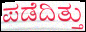
ಪಡೆದಿತ್ತು